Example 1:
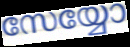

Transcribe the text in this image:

സേയ്യോ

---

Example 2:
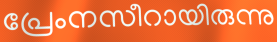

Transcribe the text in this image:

പ്രേംനസീറായിരുന്നു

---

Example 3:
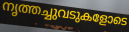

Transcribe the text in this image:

നൃത്തച്ചുവടുകളോടെ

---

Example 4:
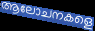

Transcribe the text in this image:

ആലോചനകളെ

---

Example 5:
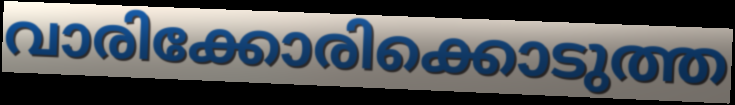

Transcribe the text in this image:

വാരിക്കോരിക്കൊടുത്ത